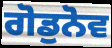
ਗੋਡੁਨੋਵ